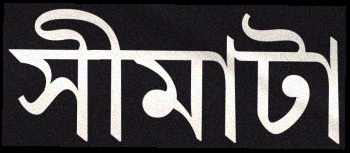
সীমাটা